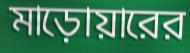
মাড়োয়ারের